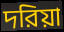
দরিয়া